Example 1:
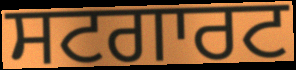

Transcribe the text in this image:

ਸਟਗਾਰਟ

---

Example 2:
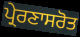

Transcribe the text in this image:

ਪ੍ਰੇਰਣਾਸਰੋਤ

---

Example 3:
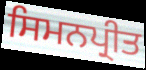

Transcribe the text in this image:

ਸਿਮਨਪ੍ਰੀਤ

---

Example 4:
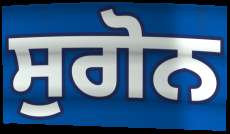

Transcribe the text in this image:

ਸੁਗੋਨ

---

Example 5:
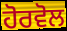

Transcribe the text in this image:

ਹੋਰਵੋਲ